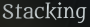
Stacking